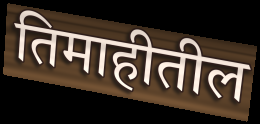
तिमाहीतील